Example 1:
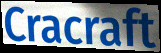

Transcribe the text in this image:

Cracraft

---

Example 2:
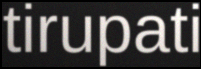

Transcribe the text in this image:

tirupati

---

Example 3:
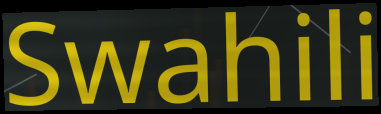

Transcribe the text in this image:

Swahili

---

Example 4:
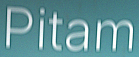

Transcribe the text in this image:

Pitam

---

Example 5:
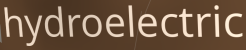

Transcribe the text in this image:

hydroelectric